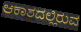
ಆಕಾಶದಲ್ಲಿರುವ